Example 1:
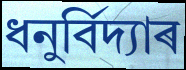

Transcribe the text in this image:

ধনুৰ্বিদ্যাৰ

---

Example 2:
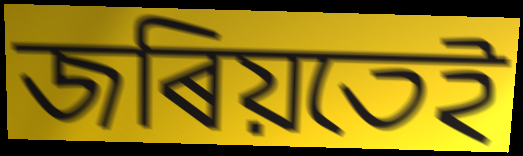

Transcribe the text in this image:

জৰিয়তেই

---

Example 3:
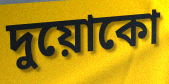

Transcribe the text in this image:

দুয়োকো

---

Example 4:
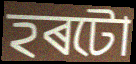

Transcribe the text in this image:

হৰটো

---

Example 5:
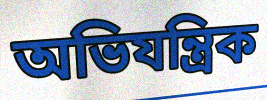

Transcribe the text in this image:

অভিযন্ত্ৰিক